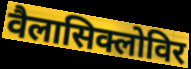
वैलासिक्लोविर